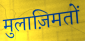
मुलाज़िमतों